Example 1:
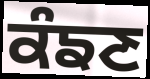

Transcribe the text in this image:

ਕੰਙਣ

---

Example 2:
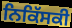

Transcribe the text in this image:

ਨਿਕਿੱਸਕੀ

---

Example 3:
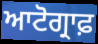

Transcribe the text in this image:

ਆਟੋਗ੍ਰਾਫ਼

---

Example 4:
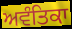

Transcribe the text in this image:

ਅਵੰਤਿਕਾ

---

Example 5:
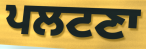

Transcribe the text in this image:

ਪਲਟਣਾ